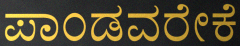
ಪಾಂಡವರೇಕೆ